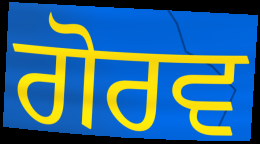
ਗੋਰਵ